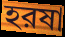
হরষা